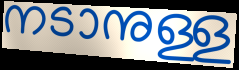
നടാനുള്ള